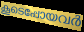
കൂടെപ്പോയവർ